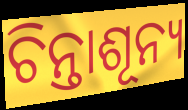
ଚିନ୍ତାଶୂନ୍ୟ